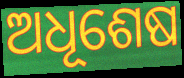
ଅଧୂଶେଷ